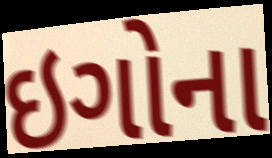
ઇગોના